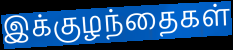
இக்குழந்தைகள்